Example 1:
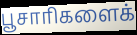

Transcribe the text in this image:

பூசாரிகளைக்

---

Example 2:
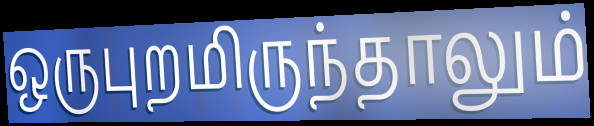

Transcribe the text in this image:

ஒருபுறமிருந்தாலும்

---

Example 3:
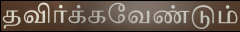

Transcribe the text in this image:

தவிர்க்கவேண்டும்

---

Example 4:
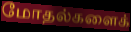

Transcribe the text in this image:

மோதல்களைக்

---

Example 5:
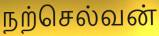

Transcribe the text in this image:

நற்செல்வன்